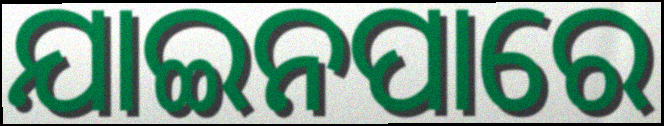
ଯାଇନପାରେ